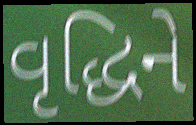
વૃદ્ધિને